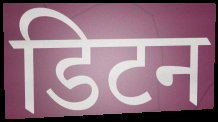
डिटन